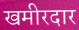
खमीरदार